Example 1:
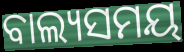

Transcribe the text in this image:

ବାଲ୍ୟସମୟ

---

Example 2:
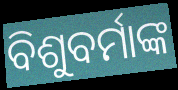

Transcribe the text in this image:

ବିଶୁବର୍ମାଙ୍କ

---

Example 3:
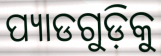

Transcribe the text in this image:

ପ୍ୟାଡଗୁଡ଼ିକୁ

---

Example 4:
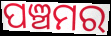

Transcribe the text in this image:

ପଞ୍ଚମର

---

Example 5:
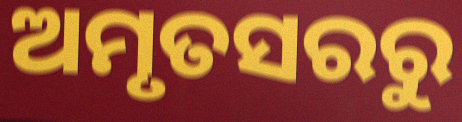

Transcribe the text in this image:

ଅମୃତସରରୁ